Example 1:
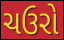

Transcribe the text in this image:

ચઉરો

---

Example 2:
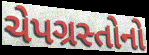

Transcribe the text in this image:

ચેપગ્રસ્તોનો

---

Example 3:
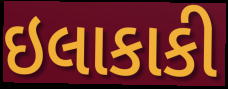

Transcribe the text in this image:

ઇલાકાકી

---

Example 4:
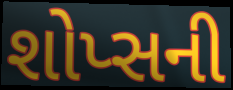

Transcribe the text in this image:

શોપ્સની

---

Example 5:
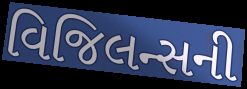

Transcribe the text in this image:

વિજિલન્સની